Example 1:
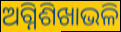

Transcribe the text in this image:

ଅଗ୍ନିଶିଖାଭଳି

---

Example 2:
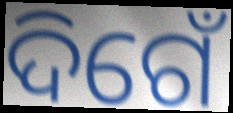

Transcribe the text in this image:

ଦିଗେଁ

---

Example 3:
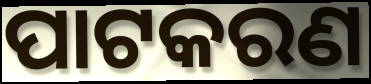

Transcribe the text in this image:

ପାଟକରଣ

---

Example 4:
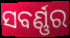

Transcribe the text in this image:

ସବର୍ଣ୍ଣର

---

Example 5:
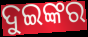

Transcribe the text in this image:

ଦୁଇଙ୍କର